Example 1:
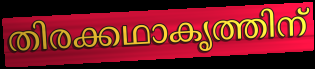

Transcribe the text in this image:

തിരക്കഥാകൃത്തിന്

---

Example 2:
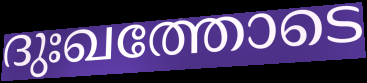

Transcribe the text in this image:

ദുഃഖത്തോടെ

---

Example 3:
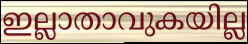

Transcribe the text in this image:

ഇല്ലാതാവുകയില്ല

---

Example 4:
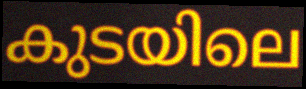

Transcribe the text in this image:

കുടയിലെ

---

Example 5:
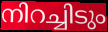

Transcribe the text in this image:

നിറച്ചിടും